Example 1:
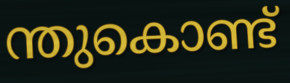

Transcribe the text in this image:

ന്തുകൊണ്ട്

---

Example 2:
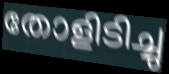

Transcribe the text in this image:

തോളിടിച്ചു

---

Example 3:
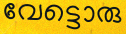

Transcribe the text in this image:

വേട്ടൊരു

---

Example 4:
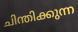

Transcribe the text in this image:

ചിന്തിക്കുന്ന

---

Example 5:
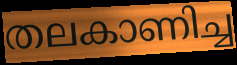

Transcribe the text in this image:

തലകാണിച്ച